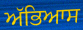
ਅੱਭਿਆਸ